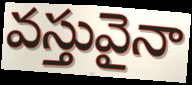
వస్తువైనా